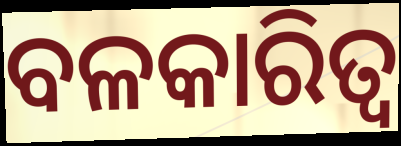
ବଳକାରିତ୍ୱ